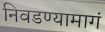
निवडण्यामागं